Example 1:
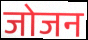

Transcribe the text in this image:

जोजन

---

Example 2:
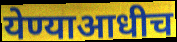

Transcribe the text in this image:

येण्याआधीच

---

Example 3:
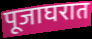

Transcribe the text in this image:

पूजाघरात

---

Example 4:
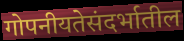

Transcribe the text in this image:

गोपनीयतेसंदर्भातील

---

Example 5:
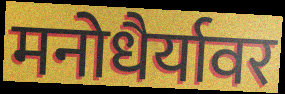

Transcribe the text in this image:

मनोधैर्यावर